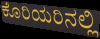
ಕೊರಿಯರಿನಲ್ಲಿ